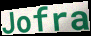
Jofra